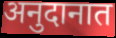
अनुदानात